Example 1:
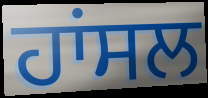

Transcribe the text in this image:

ਹਾਂਸਲ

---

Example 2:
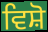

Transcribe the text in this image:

ਵਿਸ਼ੋ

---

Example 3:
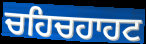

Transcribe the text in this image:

ਚਹਿਚਹਾਹਟ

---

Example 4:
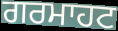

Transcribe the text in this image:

ਗਰਮਾਹਟ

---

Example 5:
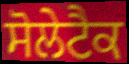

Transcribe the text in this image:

ਸੋਲੇਟੈਕ